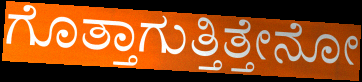
ಗೊತ್ತಾಗುತ್ತಿತ್ತೇನೋ